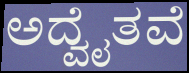
ಅದ್ವೈತವೆ